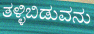
ತಳ್ಳಿಬಿಡುವನು